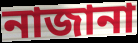
নাজানা